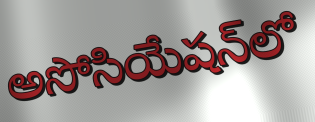
అసోసియేషన్‌లో